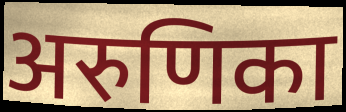
अरुणिका